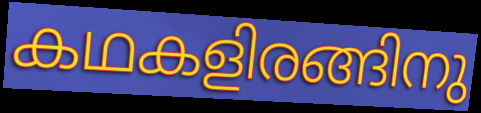
കഥകളിരങ്ങിനു